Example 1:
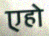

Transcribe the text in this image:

एहो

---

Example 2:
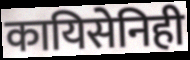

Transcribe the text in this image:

कायिसेनिही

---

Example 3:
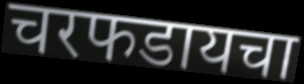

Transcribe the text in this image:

चरफडायचा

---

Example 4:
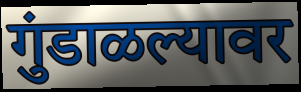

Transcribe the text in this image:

गुंडाळल्यावर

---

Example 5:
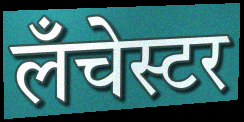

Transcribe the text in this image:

लँचेस्टर